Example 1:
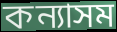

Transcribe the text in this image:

কন্যাসম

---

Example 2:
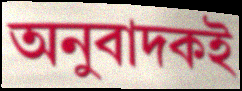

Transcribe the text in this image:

অনুবাদকই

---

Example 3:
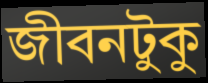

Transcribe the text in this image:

জীবনটুকু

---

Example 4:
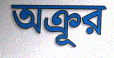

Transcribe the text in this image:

অক্রূর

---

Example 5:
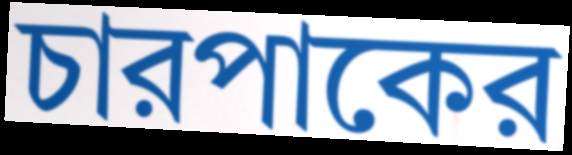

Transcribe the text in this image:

চারপাকের